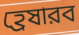
হ্রেষারব